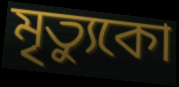
মৃত্যুকো